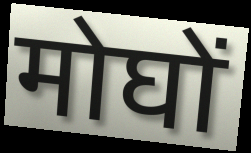
मोघों